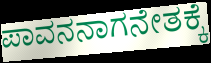
ಪಾವನನಾಗನೇತಕ್ಕೆ